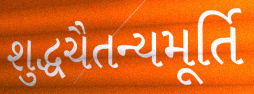
શુદ્ધચૈતન્યમૂર્તિ